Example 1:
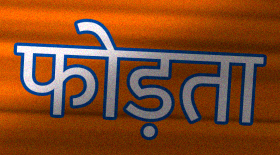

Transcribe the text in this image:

फोड़ता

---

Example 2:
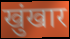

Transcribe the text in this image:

खुंखार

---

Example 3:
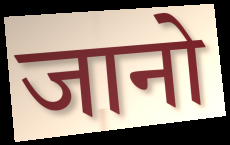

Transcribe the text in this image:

जानो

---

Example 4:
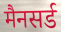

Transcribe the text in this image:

मैनसर्ड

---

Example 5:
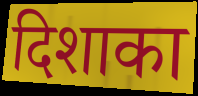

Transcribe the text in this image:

दिशाका